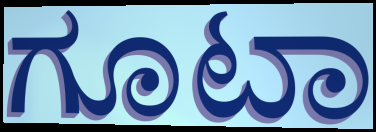
ಗೂಟಾ